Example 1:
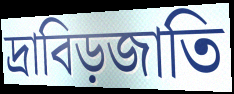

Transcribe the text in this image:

দ্রাবিড়জাতি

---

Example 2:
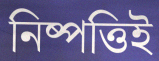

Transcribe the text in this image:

নিষ্পত্তিই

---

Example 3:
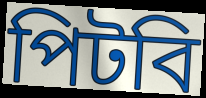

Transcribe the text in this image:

পিটবি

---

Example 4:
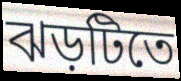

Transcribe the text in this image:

ঝড়টিতে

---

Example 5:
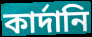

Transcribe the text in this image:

কার্দানি